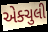
એક્ચુલી